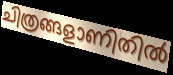
ചിത്രങ്ങളാണിതിൽ